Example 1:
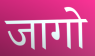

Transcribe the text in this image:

जागो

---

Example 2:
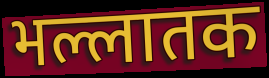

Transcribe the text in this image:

भल्लातक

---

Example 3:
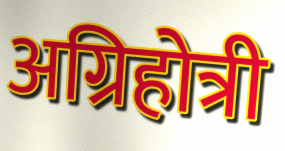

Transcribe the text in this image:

अग्रिहोत्री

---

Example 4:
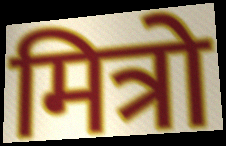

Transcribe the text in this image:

मित्रो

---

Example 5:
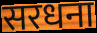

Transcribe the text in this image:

सरधना